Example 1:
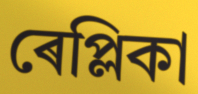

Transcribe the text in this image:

ৰেপ্লিকা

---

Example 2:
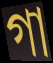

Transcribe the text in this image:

গা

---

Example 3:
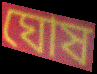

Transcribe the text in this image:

ঘোষ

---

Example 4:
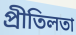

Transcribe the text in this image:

প্ৰীতিলতা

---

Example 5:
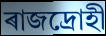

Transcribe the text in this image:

ৰাজদ্ৰোহী